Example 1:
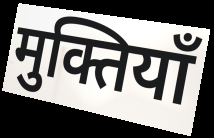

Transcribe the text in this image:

मुक्तियाँ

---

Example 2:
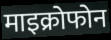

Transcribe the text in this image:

माइक्रोफोन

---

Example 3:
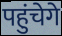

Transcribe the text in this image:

पहुंचेगे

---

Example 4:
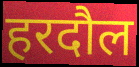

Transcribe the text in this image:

हरदौल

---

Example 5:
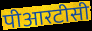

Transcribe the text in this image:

पीआरटीसी